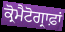
ਕ੍ਰੋਮੈਟੋਗ੍ਰਾਫ਼ਾਂ